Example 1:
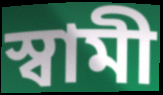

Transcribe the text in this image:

স্বামী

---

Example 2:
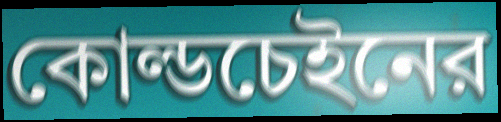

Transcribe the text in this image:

কোল্ডচেইনের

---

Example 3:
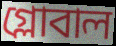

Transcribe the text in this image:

গ্লোবাল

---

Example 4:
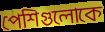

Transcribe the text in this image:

পেশিগুলোকে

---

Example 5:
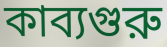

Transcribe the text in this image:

কাব্যগুরু